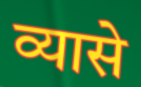
व्यासे